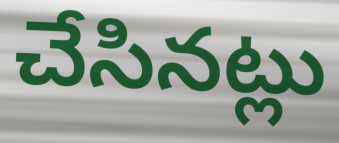
చేసినట్లు